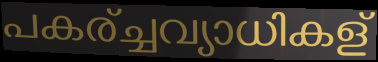
പകര്ച്ചവ്യാധികള്